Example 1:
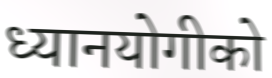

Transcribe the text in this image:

ध्यानयोगीको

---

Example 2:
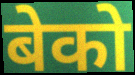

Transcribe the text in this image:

बेको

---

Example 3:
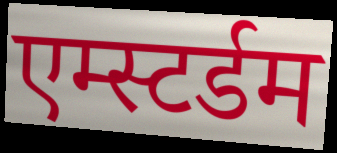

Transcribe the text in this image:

एम्स्टर्डम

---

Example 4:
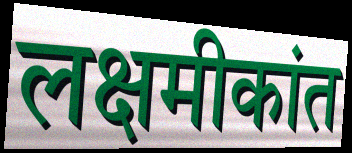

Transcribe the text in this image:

लक्षमीकांत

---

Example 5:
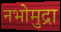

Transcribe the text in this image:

नभोमुद्रा